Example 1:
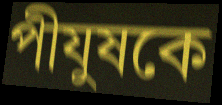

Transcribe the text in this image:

পীযুষকে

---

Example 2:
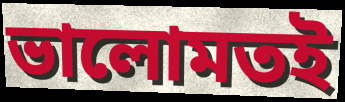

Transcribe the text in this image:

ভালোমতই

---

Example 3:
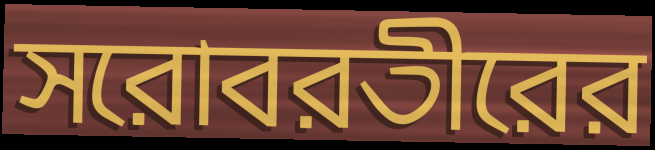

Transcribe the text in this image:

সরোবরতীরের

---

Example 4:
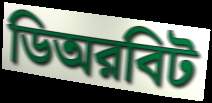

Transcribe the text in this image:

ডিঅরবিট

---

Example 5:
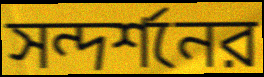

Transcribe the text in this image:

সন্দর্শনের